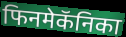
फिनमेकॅनिका